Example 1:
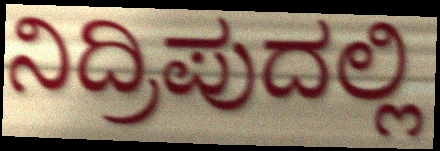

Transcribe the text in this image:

ನಿದ್ರಿಪುದಲ್ಲಿ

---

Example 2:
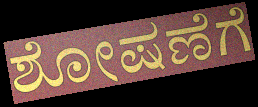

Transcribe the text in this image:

ಶೋಷಣೆಗೆ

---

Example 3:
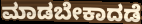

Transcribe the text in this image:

ಮಾಡಬೇಕಾದಡೆ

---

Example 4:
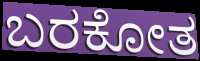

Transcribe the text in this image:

ಬರಕೋತ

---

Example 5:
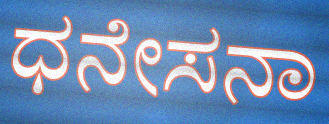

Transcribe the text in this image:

ಧನೇಸನಾ